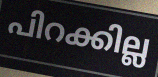
പിറക്കില്ല